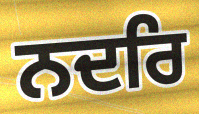
ਨਦਰਿ